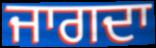
ਜਾਗਦਾ